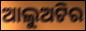
ଆଲୁଅଟିର